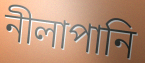
নীলাপানি